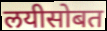
लयीसोबत